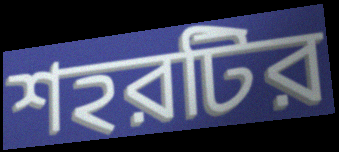
শহরটির